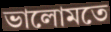
ভালোমতে